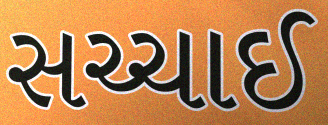
સચ્ચાઈ